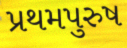
પ્રથમપુરુષ